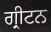
ਗ੍ਰੀਟਨ